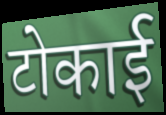
टोकाई